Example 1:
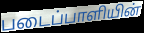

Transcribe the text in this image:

படைப்பாளியின்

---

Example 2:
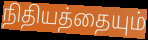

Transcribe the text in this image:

நிதியத்தையும்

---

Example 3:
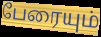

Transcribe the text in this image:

பேரையும்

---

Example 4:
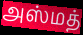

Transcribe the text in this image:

அஸ்மத்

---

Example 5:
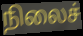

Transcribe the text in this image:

நிலைச்